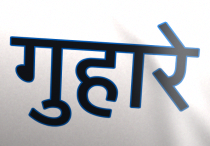
गुहारे